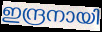
ഇന്ദ്രനായി